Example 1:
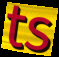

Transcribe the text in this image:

ts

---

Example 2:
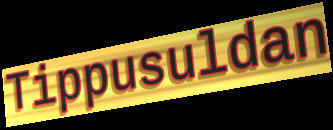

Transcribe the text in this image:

Tippusuldan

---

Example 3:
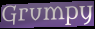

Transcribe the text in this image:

Grumpy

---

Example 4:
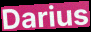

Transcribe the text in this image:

Darius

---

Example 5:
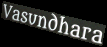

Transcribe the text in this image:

Vasundhara